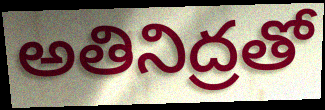
అతినిద్రతో